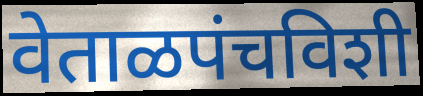
वेताळपंचविशी